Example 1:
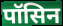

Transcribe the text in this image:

पॉसिन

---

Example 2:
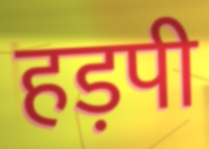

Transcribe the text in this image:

हड़पी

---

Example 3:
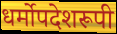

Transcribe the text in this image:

धर्मोपदेशरूपी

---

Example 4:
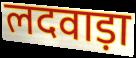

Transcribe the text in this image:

लदवाड़ा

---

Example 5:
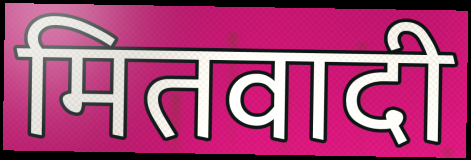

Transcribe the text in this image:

मितवादी